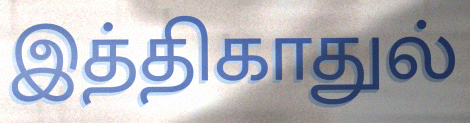
இத்திகாதுல்